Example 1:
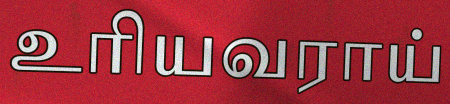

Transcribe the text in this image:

உரியவராய்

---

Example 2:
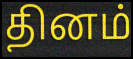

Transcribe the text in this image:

தினம்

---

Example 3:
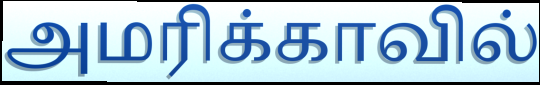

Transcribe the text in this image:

அமரிக்காவில்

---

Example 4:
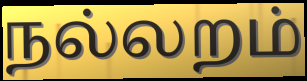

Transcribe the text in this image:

நல்லறம்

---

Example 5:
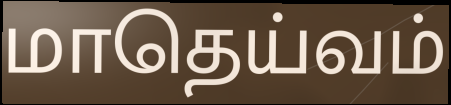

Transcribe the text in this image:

மாதெய்வம்